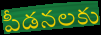
పీడనలకు